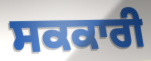
ਸਕਕਾਰੀ